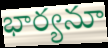
భార్యనూ